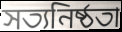
সত্যনিষ্ঠতা